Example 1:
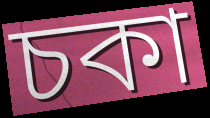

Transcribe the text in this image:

চকা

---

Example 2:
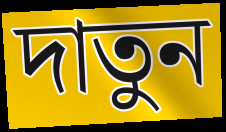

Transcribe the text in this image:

দাতুন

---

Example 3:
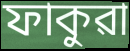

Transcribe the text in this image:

ফাকুৱা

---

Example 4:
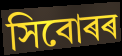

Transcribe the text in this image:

সিবোৰৰ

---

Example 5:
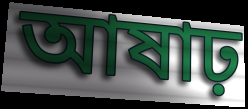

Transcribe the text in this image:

আষাঢ়